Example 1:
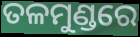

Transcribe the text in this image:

ତଳମୁଣ୍ଡରେ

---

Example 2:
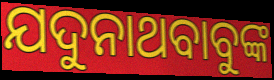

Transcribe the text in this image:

ଯଦୁନାଥବାବୁଙ୍କ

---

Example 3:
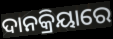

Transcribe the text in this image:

ଦାନକ୍ରିୟାରେ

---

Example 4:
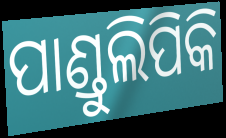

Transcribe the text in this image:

ପାଣ୍ଡୁଲିପିକି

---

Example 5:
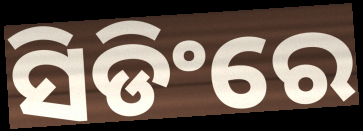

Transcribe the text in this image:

ସିଡିଂରେ